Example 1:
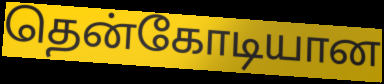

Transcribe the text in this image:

தென்கோடியான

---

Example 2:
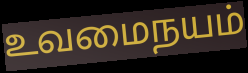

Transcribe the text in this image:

உவமைநயம்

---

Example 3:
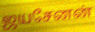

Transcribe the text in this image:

ஜயசேனன்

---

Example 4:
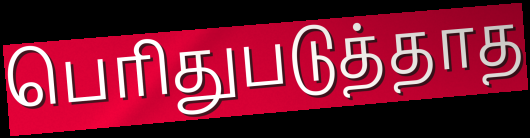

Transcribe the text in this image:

பெரிதுபடுத்தாத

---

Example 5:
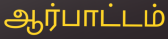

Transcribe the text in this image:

ஆர்பாட்டம்